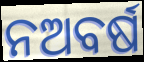
ନଅବର୍ଷ